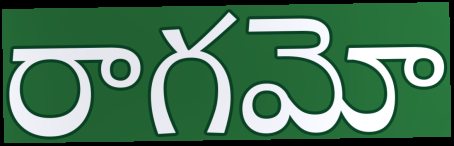
రాగమో